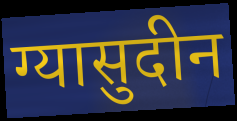
ग्यासुदीन